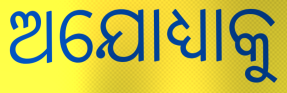
ଅଯୋଧ୍ୟାକୁ